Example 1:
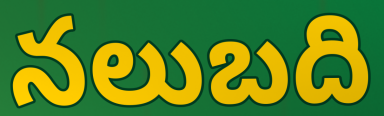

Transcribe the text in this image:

నలుబది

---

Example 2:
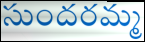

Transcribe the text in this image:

సుందరమ్మ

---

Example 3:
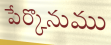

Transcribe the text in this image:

పేర్కొనుము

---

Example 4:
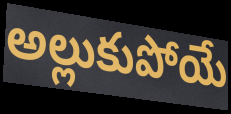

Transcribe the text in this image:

అల్లుకుపోయే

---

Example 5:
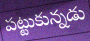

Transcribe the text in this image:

పట్టుకున్నడు